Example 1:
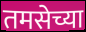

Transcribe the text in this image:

तमसेच्या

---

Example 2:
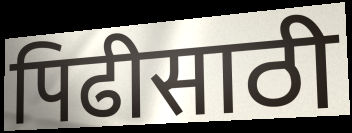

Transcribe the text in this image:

पिढीसाठी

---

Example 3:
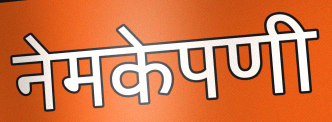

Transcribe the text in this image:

नेमकेपणी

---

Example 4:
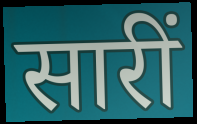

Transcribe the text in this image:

सारीं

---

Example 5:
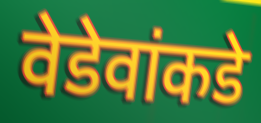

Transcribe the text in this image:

वेडेवांकडे